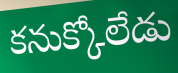
కనుక్కోలేడు